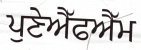
ਪੁਣੇਐੱਫਐੱਮ